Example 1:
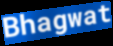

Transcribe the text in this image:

Bhagwat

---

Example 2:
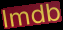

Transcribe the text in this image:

Imdb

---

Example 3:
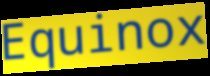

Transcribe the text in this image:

Equinox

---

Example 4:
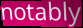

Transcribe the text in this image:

notably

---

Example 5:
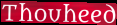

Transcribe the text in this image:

Thouheed